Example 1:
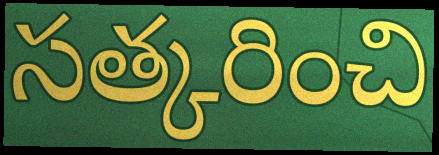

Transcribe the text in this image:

సత్కరించి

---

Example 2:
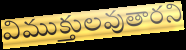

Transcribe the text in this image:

విముక్తులవుతారని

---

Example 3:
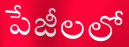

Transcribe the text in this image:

పేజీలలో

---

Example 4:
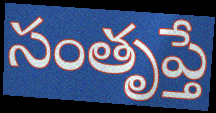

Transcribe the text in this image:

సంతృప్తే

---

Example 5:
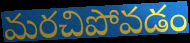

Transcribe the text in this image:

మరచిపోవడం